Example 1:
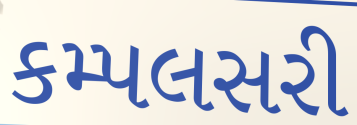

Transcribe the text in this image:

કમ્પલસરી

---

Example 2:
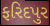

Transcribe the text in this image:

ફરિદપુર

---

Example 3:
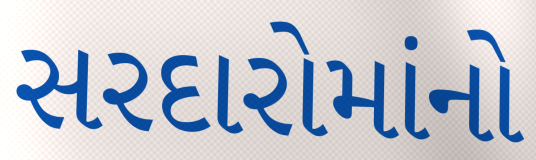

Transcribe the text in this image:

સરદારોમાંનો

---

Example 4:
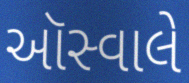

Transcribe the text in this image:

ઑસ્વાલે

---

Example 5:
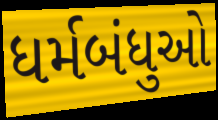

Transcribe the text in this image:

ધર્મબંધુઓ